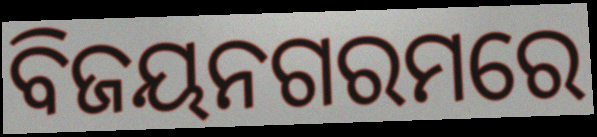
ବିଜୟନଗରମରେ